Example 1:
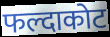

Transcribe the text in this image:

फल्दाकोट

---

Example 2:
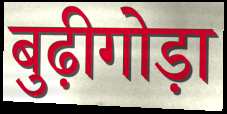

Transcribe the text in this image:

बुढ़ीगोड़ा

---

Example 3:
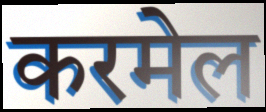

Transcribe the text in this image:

करमेल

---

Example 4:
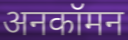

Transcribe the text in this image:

अनकॉमन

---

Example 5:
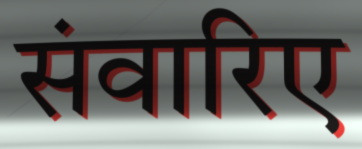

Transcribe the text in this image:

संवारिए